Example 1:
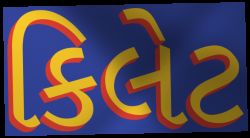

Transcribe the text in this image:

કિલેટ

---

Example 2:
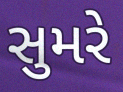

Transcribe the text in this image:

સુમરે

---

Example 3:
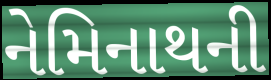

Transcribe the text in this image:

નેમિનાથની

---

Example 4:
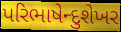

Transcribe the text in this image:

પરિભાષેન્દુશેખર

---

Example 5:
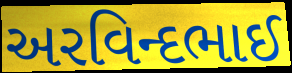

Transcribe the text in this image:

અરવિન્દભાઈ